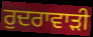
ਰੁਦਰਾਵਾੜੀ